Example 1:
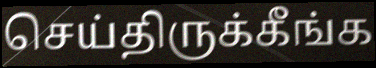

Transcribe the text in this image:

செய்திருக்கீங்க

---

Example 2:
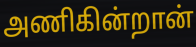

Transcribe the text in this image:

அணிகின்றான்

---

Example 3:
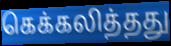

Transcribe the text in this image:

கெக்கலித்தது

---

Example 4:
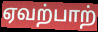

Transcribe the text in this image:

ஏவற்பாற்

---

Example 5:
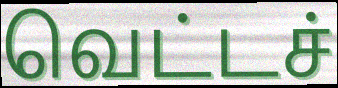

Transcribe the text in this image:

வெட்டச்